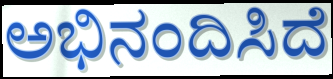
ಅಭಿನಂದಿಸಿದೆ